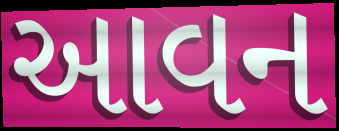
આવન